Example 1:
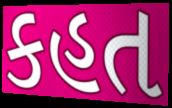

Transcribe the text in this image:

કહત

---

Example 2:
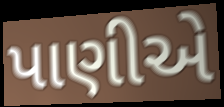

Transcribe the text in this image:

પાણીએ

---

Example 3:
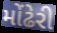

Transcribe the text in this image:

મોંઢેરી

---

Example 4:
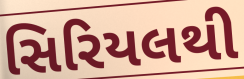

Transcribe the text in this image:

સિરિયલથી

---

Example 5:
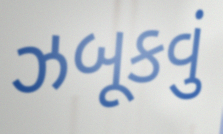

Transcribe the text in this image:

ઝબૂકવું